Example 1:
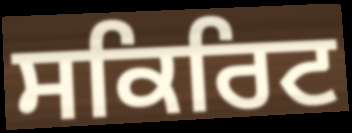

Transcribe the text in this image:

ਸਕਿਰਿਟ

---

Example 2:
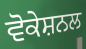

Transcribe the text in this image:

ਵੋਕੇਸ਼ਨਲ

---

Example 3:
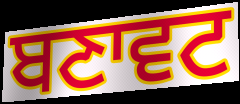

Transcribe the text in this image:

ਬਣਾਵਟ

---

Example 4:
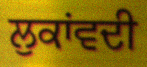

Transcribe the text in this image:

ਲੁਕਾਂਵਦੀ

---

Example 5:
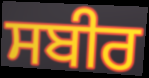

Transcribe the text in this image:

ਸਬੀਰ